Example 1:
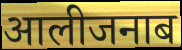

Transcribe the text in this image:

आलीजनाब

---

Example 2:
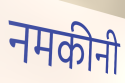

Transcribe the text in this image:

नमकीनी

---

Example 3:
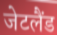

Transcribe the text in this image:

जेटलैंड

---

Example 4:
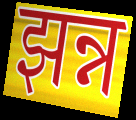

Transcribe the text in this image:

झन्न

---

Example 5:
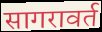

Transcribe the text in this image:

सागरावर्त